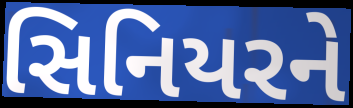
સિનિયરને